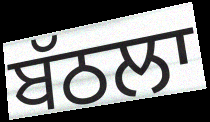
ਬੱਠਲਾ